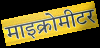
माइक्रोमीटर